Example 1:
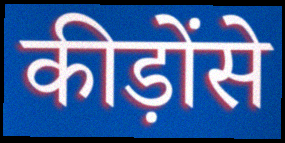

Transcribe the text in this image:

कीड़ोंसे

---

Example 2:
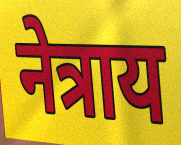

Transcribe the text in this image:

नेत्राय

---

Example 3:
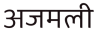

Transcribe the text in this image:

अजमली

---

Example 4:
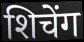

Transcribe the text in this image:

शिचेंग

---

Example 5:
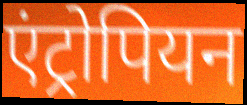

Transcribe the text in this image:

एंट्रोपियन